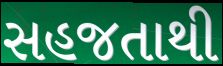
સહજતાથી